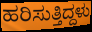
ಹರಿಸುತ್ತಿದ್ದಳು